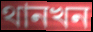
থানখন